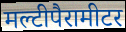
मल्टीपैरामीटर